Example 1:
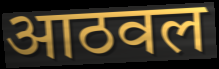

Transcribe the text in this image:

आठवल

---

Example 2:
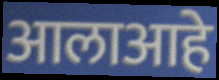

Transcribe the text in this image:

आलाआहे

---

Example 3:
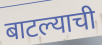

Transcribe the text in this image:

बाटल्याची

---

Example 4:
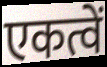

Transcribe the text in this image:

एकत्वें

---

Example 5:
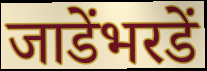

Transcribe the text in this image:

जाडेंभरडें